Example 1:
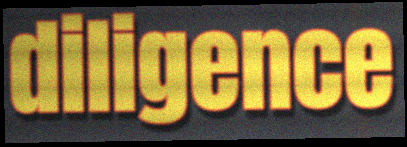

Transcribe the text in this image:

diligence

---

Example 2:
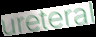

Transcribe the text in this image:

ureteral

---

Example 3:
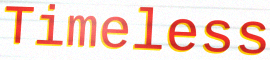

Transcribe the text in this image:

Timeless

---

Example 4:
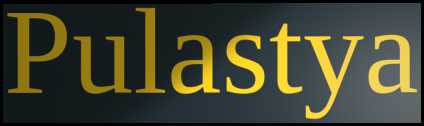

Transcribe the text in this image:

Pulastya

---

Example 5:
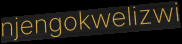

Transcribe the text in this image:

njengokwelizwi